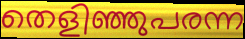
തെളിഞ്ഞുപരന്ന